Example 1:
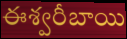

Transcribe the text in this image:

ఈశ్వరీబాయి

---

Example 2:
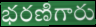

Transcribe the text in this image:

భరణిగారు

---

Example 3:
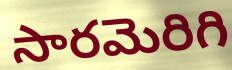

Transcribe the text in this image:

సారమెరిగి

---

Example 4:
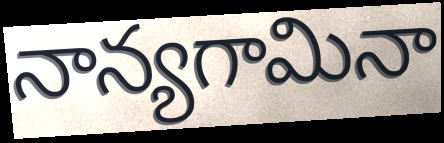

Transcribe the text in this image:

నాన్యగామినా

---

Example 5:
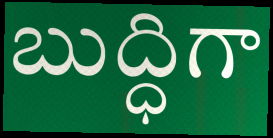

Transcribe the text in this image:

బుద్ధిగా